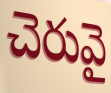
చెరువై